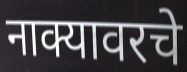
नाक्यावरचे